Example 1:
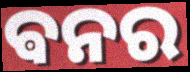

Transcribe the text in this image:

ଵନର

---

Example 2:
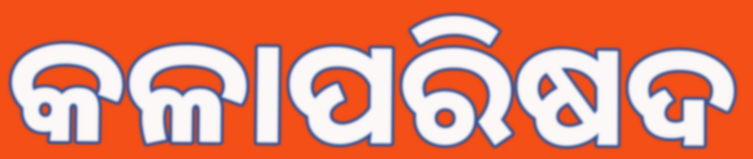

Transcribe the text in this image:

କଳାପରିଷଦ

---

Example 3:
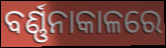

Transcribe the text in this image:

ବର୍ଣ୍ଣନାକାଳରେ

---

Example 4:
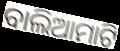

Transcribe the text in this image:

ବାଲିଆମାଟି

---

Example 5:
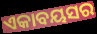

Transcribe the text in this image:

ଏକାବୟସର